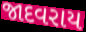
જાદવરાય